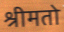
श्रीमतो